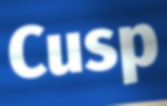
Cusp